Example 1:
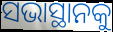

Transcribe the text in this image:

ସଭାସ୍ଥାନକୁ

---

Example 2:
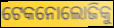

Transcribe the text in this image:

ଟେକନୋଲୋଜିକୁ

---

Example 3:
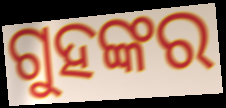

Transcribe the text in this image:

ଗୁହଙ୍କର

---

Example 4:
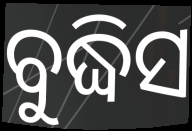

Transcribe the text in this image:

ବୁଦ୍ଧିସ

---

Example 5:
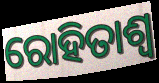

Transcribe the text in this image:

ରୋହିତାଶ୍ୱ